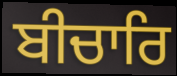
ਬੀਚਾਰਿ